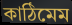
কাঠিমেম